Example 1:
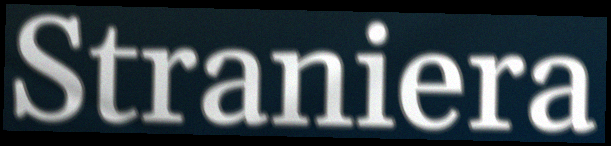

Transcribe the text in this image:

Straniera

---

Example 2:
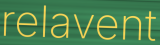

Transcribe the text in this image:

relavent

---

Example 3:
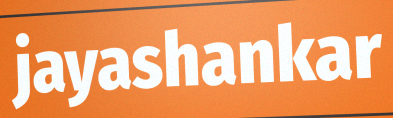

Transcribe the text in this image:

jayashankar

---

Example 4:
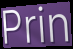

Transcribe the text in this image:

Prin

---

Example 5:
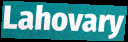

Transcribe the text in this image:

Lahovary